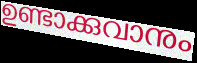
ഉണ്ടാക്കുവാനും